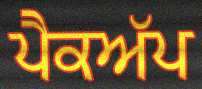
ਪੈਕਅੱਪ